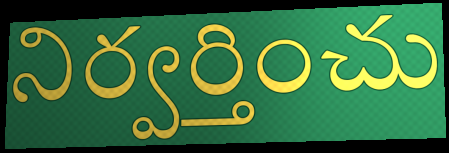
నిర్వర్తించు